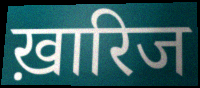
ख़ारिज